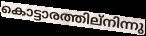
കൊട്ടാരത്തില്നിന്നു